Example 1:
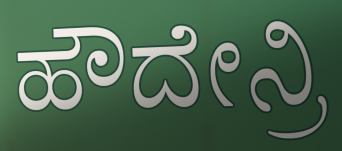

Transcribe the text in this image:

ಹೌದೇನ್ರಿ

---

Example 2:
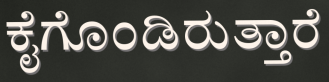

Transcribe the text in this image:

ಕೈಗೊಂಡಿರುತ್ತಾರೆ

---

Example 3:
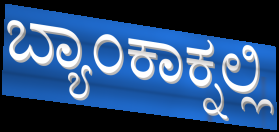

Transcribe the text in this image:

ಬ್ಯಾಂಕಾಕ್ನಲ್ಲಿ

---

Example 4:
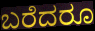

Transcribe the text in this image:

ಬರೆದರೂ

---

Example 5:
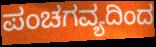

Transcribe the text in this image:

ಪಂಚಗವ್ಯದಿಂದ